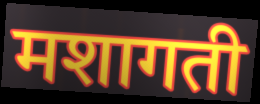
मशागती